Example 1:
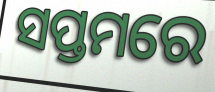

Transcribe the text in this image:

ସପ୍ତମରେ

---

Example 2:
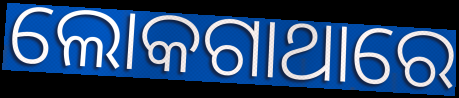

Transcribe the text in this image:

ଲୋକଗାଥାରେ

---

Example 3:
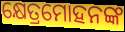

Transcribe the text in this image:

କ୍ଷେତ୍ରମୋହନଙ୍କ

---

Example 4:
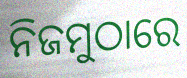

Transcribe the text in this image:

ନିଜମୁଠାରେ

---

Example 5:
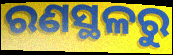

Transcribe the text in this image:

ରଣସ୍ଥଳରୁ